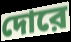
দোরে